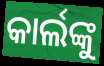
କାର୍ଲଙ୍କୁ